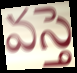
వస్తె